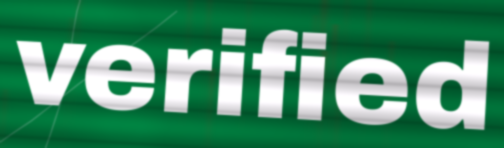
verified